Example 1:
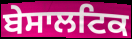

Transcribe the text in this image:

ਬੇਸਾਲਟਿਕ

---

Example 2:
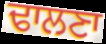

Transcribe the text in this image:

ਢਾਲਣਾ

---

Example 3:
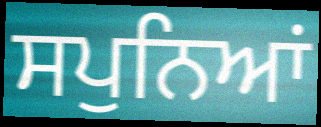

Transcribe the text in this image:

ਸਪੁਨਿਆਂ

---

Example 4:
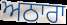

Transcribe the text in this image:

ਅਠਾਰਾ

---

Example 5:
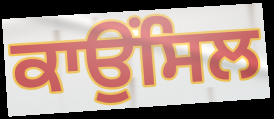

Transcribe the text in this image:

ਕਾਉਂਸਿਲ